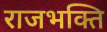
राजभक्ति